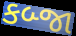
કબ્જા